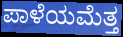
ಪಾಳೆಯಮೆತ್ತ